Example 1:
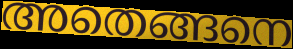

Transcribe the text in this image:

അതെങ്ങനെ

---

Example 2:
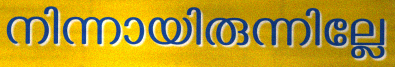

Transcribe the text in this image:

നിന്നായിരുന്നില്ലേ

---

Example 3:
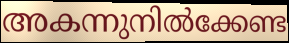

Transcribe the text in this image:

അകന്നുനിൽക്കേണ്ട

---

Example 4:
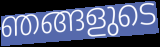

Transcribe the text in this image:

ഞങ്ങളുടെ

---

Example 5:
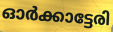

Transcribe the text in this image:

ഓർക്കാട്ടേരി